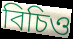
বিচিও